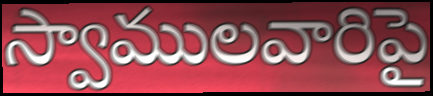
స్వాములవారిపై